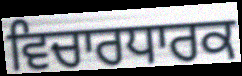
ਵਿਚਾਰਧਾਰਕ